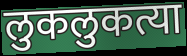
लुकलुकत्या